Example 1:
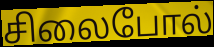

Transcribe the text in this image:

சிலைபோல்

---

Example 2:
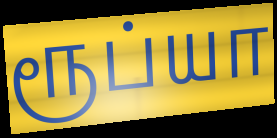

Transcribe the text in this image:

ரூப்யா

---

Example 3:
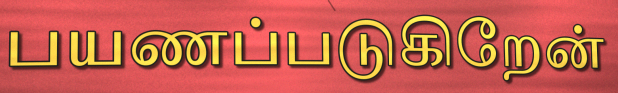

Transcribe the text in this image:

பயணப்படுகிறேன்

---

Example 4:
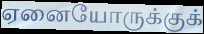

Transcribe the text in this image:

ஏனையோருக்குக்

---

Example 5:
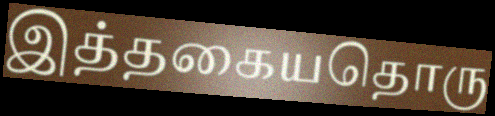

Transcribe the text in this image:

இத்தகையதொரு